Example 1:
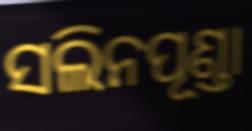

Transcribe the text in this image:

ସଲିନପୂଣ୍ଡା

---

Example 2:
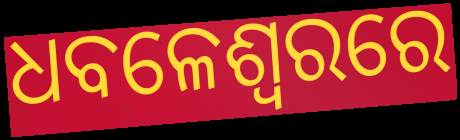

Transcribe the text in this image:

ଧବଳେଶ୍ଵରରେ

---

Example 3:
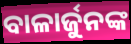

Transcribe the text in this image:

ବାଳାର୍ଜୁନଙ୍କ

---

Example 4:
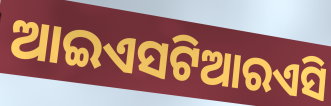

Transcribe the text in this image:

ଆଇଏସଟିଆରଏସି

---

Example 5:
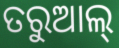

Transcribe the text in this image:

ତରୁଆଲ୍